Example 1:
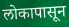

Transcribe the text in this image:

लोकापासून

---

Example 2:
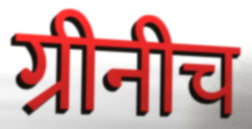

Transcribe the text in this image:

ग्रीनीच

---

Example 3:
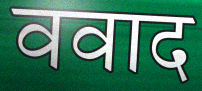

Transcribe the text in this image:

ववाद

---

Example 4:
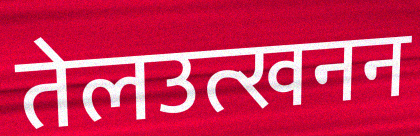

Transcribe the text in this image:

तेलउत्खनन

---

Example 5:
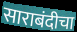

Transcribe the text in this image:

साराबंदीचा